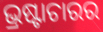
ଭ୍ରଷ୍ଟାଚାରର